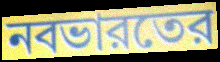
নবভারতের